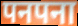
पनपना